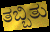
ತಬ್ಬಿತು